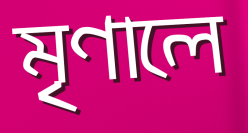
মৃণালে